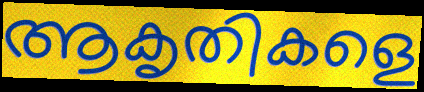
ആകൃതികളെ